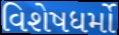
વિશેષધર્મો